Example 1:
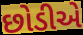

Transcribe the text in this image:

છોડીએ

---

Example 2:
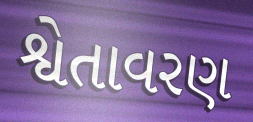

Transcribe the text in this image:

શ્વેતાવરણ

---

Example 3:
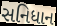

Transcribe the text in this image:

સનિધાન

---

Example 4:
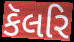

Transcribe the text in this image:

કૅલરિ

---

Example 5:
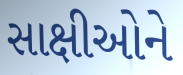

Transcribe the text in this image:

સાક્ષીઓને